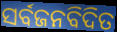
ସର୍ବଜନବିଦିତ